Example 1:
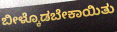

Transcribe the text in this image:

ಬೀಳ್ಕೊಡಬೇಕಾಯಿತು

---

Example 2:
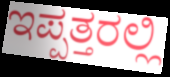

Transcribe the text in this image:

ಇಪ್ಪತ್ತರಲ್ಲಿ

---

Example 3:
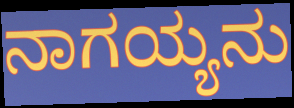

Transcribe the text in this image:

ನಾಗಯ್ಯನು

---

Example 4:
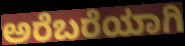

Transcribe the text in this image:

ಅರೆಬರೆಯಾಗಿ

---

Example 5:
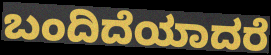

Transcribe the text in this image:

ಬಂದಿದೆಯಾದರೆ